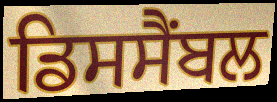
ਡਿਸਸੈਂਬਲ